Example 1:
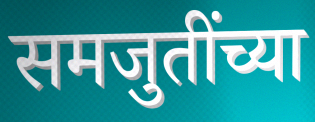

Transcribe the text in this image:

समजुतींच्या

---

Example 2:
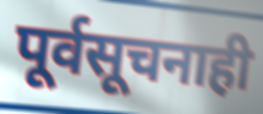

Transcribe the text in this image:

पूर्वसूचनाही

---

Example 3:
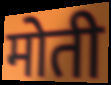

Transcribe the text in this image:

मोती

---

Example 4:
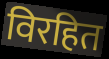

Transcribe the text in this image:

विरहित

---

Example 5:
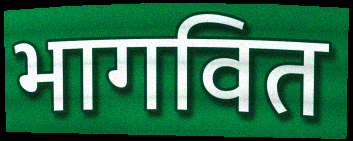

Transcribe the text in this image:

भागवित